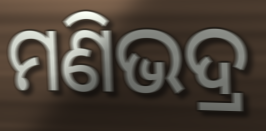
ମଣିଭଦ୍ର